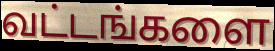
வட்டங்களை